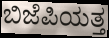
ಬಿಜೆಪಿಯತ್ತ